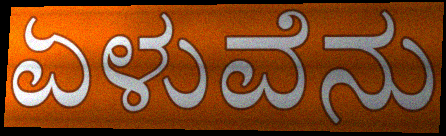
ಏಳುವೆನು